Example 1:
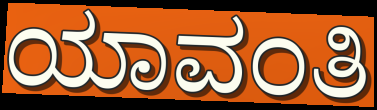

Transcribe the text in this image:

ಯಾವಂತಿ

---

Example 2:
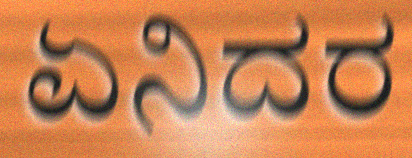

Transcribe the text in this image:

ಏನಿದರ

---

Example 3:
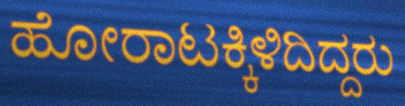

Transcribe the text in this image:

ಹೋರಾಟಕ್ಕಿಳಿದಿದ್ದರು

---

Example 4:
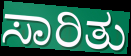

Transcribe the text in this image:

ಸಾರಿತು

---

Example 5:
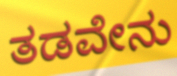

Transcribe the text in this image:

ತಡವೇನು